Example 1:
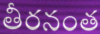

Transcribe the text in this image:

తీరనంత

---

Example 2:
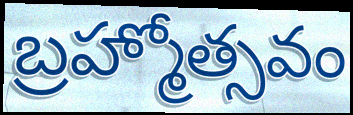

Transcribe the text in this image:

బ్రహ్మోత్సవం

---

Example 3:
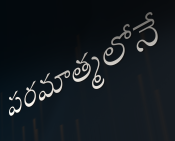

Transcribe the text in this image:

పరమాత్మలోనే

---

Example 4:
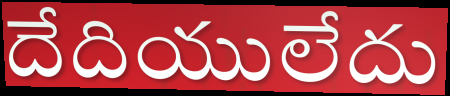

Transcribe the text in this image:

దేదియులేదు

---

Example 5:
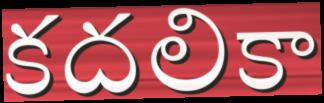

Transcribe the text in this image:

కదలికా